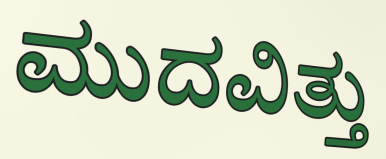
ಮುದವಿತ್ತು